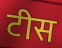
टीस